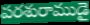
పరశురాముడై